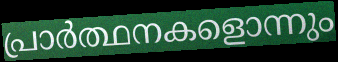
പ്രാർത്ഥനകളൊന്നും